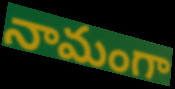
నామంగా